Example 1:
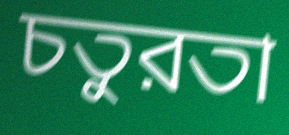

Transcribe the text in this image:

চতুরতা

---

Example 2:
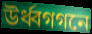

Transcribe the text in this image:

উর্ধ্বগগনে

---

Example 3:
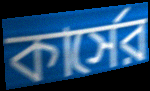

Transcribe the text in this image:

কার্সের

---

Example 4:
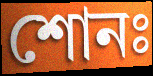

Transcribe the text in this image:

শোনঃ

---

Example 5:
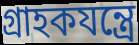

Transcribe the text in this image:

গ্রাহকযন্ত্রে